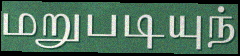
மறுபடியுந்